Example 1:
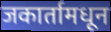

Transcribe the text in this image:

जकार्तामधून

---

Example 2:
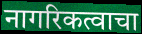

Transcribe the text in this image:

नागरिकत्वाचा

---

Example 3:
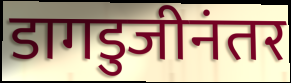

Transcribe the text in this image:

डागडुजीनंतर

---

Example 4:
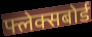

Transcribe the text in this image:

फ्लेक्सबोर्ड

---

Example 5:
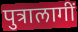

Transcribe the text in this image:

पुत्रालागीं